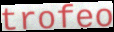
trofeo